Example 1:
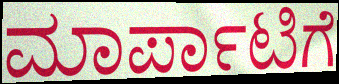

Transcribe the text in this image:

ಮಾರ್ಪಾಟಿಗೆ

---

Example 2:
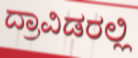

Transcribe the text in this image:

ದ್ರಾವಿಡರಲ್ಲಿ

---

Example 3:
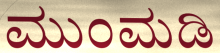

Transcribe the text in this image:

ಮುಂಮಡಿ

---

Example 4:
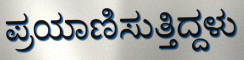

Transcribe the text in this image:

ಪ್ರಯಾಣಿಸುತ್ತಿದ್ದಳು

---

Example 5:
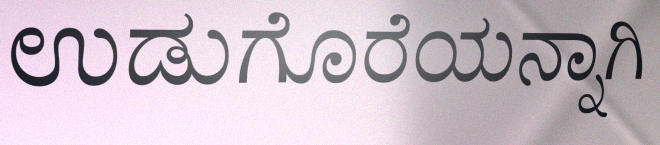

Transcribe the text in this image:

ಉಡುಗೊರೆಯನ್ನಾಗಿ